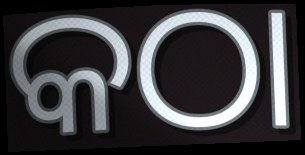
କଠା